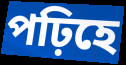
পঢ়িহে